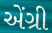
એંગ્રી